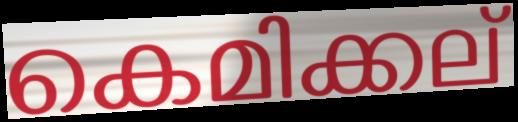
കെമിക്കല്